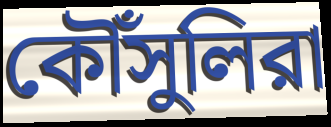
কৌঁসুলিরা